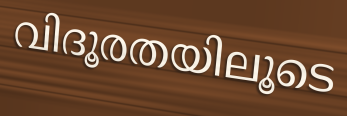
വിദൂരതയിലൂടെ